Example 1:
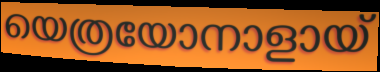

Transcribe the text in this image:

യെത്രയോനാളായ്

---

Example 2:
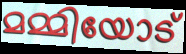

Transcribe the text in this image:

മമ്മിയോട്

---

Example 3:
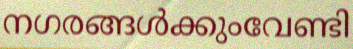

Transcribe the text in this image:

നഗരങ്ങൾക്കുംവേണ്ടി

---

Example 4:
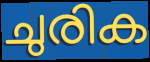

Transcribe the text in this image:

ചുരിക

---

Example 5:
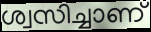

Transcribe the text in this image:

ശ്വസിച്ചാണ്